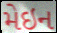
મેઇન